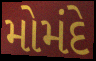
મોમંદે